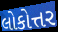
લોકોત્તર